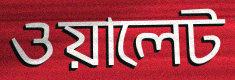
ওয়ালেট